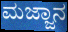
ಮಜ್ಜಾನ